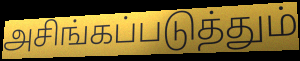
அசிங்கப்படுத்தும்